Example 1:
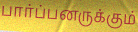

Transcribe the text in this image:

பார்ப்பனருக்கும்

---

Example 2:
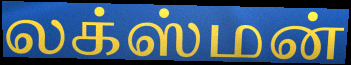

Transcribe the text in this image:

லக்ஸ்மன்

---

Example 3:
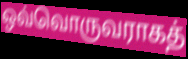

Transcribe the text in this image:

ஒவ்வொருவராகத்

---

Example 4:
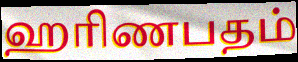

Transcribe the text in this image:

ஹரிணபதம்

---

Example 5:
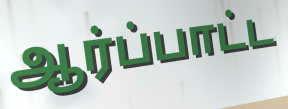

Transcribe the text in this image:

ஆர்ப்பாட்ட